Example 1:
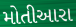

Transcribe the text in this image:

મોતીઆરા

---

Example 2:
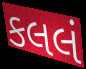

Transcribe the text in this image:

કલલં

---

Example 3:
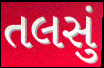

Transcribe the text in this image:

તલસું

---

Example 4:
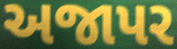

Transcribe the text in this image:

અજાપર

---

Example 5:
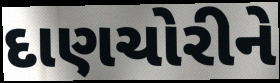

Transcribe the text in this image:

દાણચોરીને